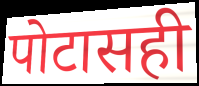
पोटासही